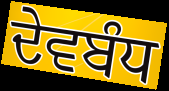
ਦੇਵਬੰਧ